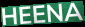
HEENA